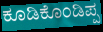
ಕೂಡಿಕೊಂಡಿಪ್ಪ